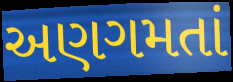
અણગમતાં